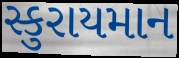
સ્કુરાયમાન